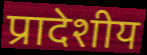
प्रादेशीय